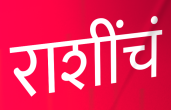
राशींचं